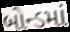
બોન્ડમાં